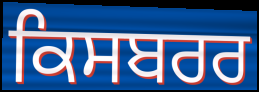
ਕਿਸਬਰਰ